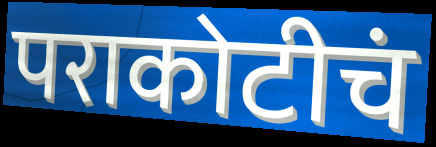
पराकोटीचं